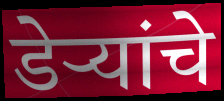
डेर्‍यांचे